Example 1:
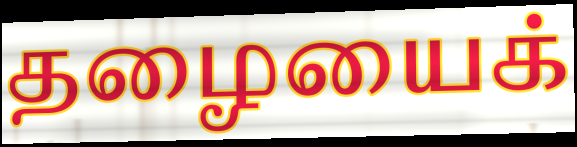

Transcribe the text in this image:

தழையைக்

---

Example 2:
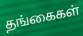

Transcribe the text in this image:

தங்கைகள்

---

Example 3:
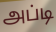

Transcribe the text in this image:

அப்டி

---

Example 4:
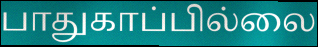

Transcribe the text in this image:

பாதுகாப்பில்லை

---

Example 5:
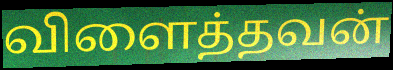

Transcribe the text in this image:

விளைத்தவன்